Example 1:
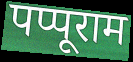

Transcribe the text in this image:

पप्पूराम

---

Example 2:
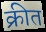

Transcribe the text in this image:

क्रीत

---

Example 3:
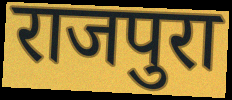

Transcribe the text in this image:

राजपुरा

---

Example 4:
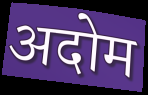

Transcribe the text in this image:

अदोम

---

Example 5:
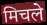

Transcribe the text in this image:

मिचले